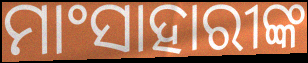
ମାଂସାହାରୀଙ୍କ